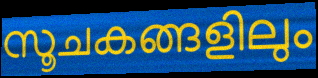
സൂചകങ്ങളിലും